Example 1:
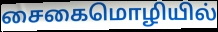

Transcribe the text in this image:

சைகைமொழியில்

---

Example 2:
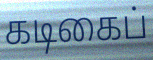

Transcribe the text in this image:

கடிகைப்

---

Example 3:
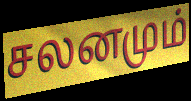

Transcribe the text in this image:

சலனமும்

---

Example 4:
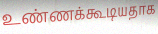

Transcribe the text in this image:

உண்ணக்கூடியதாக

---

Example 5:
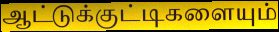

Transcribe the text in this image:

ஆட்டுக்குட்டிகளையும்